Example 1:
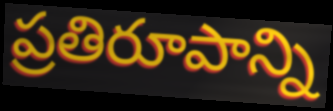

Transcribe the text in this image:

ప్రతిరూపాన్ని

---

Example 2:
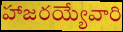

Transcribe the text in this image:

హాజరయ్యేవారి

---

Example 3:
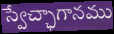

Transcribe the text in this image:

స్వేచ్ఛాగానము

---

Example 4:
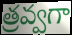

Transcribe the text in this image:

త్రవ్వగా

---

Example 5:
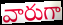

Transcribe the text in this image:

వారుగా